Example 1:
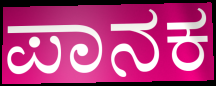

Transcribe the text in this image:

ಪಾನಕ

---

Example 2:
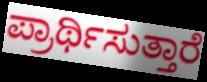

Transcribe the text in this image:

ಪ್ರಾರ್ಥಿಸುತ್ತಾರೆ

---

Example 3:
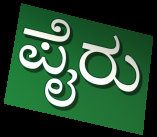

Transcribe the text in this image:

ಪೈರು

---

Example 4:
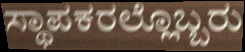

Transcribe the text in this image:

ಸ್ಥಾಪಕರಲ್ಲೊಬ್ಬರು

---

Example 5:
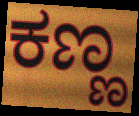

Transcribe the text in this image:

ಕಣ್ಣ